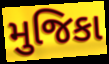
મુજિકા